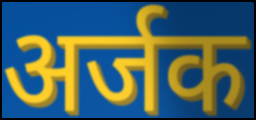
अर्जक